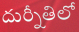
దుర్నీతిలో